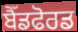
ਬੈੱਡਫੋਰਡ